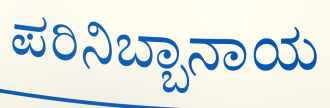
ಪರಿನಿಬ್ಬಾನಾಯ